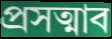
প্রসত্মাব